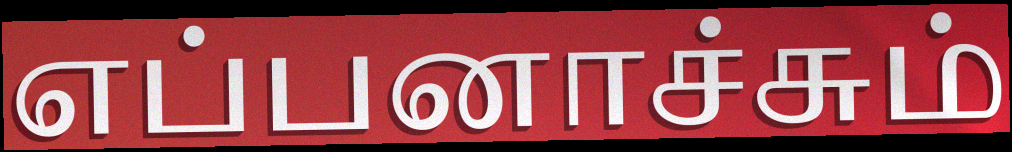
எப்பனாச்சும்